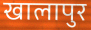
खालापुर